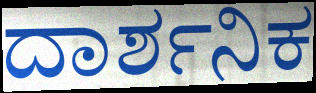
ದಾರ್ಶನಿಕ